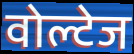
वोल्टेज